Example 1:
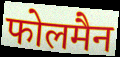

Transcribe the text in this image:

फोलमैन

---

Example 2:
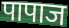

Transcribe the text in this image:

पापाज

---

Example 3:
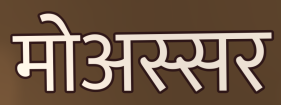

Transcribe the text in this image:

मोअस्सर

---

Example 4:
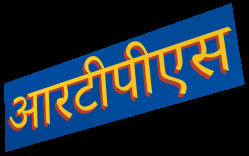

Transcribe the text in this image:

आरटीपीएस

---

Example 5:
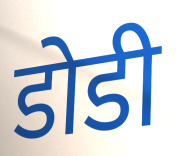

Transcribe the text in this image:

डोडी